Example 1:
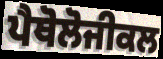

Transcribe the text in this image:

ਪੈਥੋਲੋਜੀਕਲ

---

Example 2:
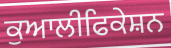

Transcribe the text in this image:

ਕੁਆਲੀਫਿਕੇਸ਼ਨ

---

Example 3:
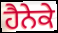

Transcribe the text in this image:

ਹੈਨੇਕੇ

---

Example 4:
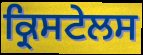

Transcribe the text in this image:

ਕ੍ਰਿਸਟੇਲਸ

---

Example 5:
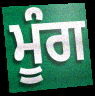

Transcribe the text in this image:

ਮੂੰਗ